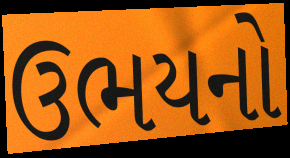
ઉભયનો